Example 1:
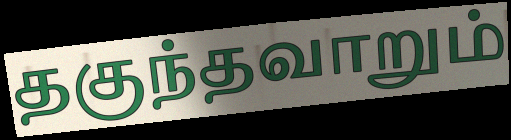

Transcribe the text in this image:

தகுந்தவாறும்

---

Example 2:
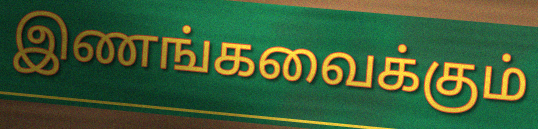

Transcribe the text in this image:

இணங்கவைக்கும்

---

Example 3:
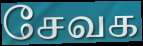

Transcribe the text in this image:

சேவக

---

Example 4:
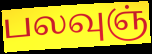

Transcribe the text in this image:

பலவுஞ்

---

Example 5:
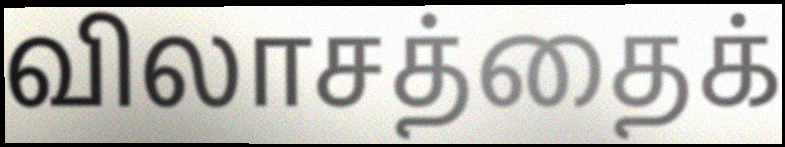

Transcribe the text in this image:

விலாசத்தைக்